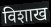
विशाख